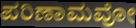
ಪರಿಣಾಮವೋ